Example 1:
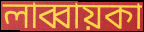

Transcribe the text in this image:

লাব্বায়কা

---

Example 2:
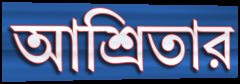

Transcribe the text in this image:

আশ্রিতার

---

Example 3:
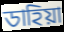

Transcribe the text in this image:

ডাহিয়া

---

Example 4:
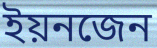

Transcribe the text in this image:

ইয়নজেন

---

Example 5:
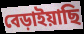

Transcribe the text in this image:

বেড়াইয়াছি